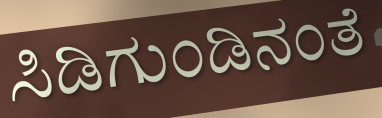
ಸಿಡಿಗುಂಡಿನಂತೆ